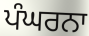
ਪੰਘਰਨਾ